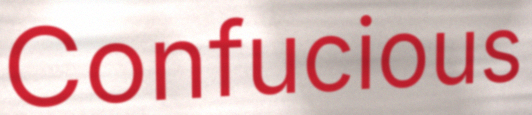
Confucious